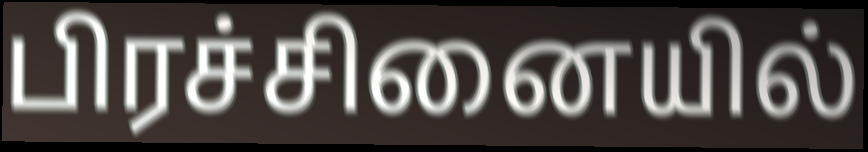
பிரச்சினையில்